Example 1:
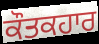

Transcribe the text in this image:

ਕੌਤਕਹਾਰ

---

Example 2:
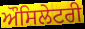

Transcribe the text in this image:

ਔਸਿਲੇਟਰੀ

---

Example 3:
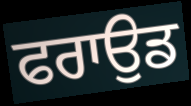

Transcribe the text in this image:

ਫਰਾਉਡ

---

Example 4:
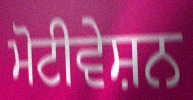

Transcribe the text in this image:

ਮੋਟੀਵੇਸ਼ਨ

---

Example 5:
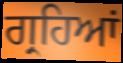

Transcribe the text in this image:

ਗ੍ਰਹਿਆਂ